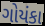
ગોયંકા